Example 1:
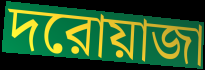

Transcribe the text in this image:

দরোয়াজা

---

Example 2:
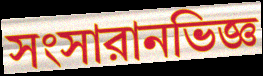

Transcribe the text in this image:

সংসারানভিজ্ঞ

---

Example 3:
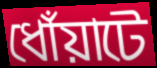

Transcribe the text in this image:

ধোঁয়াটে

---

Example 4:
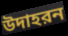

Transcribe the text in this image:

উদাহরন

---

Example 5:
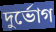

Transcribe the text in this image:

দুর্ভোগ